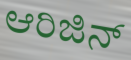
ಆರಿಜಿನ್